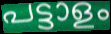
പട്ടാളം